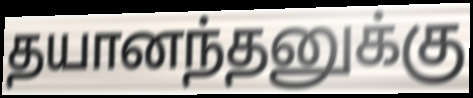
தயானந்தனுக்கு